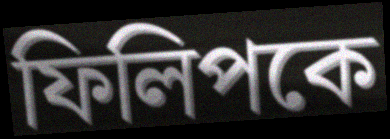
ফিলিপকে